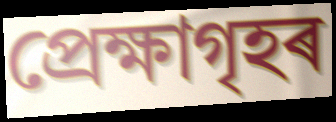
প্ৰেক্ষাগৃহৰ